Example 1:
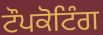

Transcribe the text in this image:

ਟੌਪਕੋਟਿੰਗ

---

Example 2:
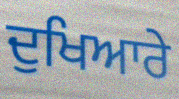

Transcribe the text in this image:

ਦੁਖਿਆਰੇ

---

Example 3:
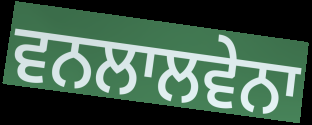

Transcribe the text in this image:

ਵਨਲਾਲਵੇਨਾ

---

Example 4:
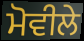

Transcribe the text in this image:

ਮੋਵੀਲੇ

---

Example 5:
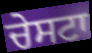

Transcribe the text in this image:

ਚੇਸਟਾ